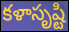
కళాసృష్టి